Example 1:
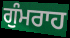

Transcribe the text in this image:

ਗੁੰਮਰਾਹ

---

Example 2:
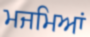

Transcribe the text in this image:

ਮਜਮਿਆਂ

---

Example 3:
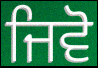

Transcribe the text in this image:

ਜਿਵੋ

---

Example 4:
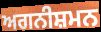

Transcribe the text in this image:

ਅਗਨੀਸ਼ਮਨ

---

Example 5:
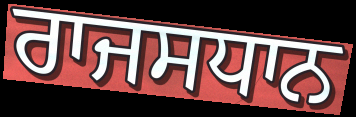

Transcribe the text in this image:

ਰਾਜਸਧਾਨ